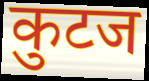
कुटज